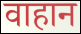
वाहान